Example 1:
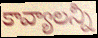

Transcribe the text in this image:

కావ్యాలన్నీ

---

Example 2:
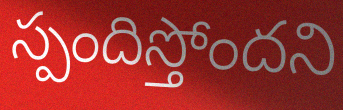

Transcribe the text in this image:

స్పందిస్తోందని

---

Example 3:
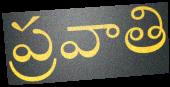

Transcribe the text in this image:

ప్రవాతి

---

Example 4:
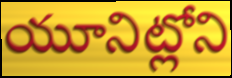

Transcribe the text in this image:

యూనిట్లోని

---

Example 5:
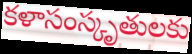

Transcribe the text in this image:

కళాసంస్కృతులకు